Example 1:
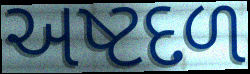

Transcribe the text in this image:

અષ્ટદળ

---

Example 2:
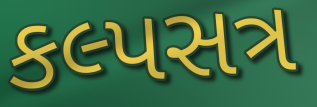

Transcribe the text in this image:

કલ્પસત્ર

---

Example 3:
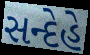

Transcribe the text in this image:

સન્દેહે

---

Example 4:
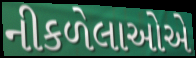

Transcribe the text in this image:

નીકળેલાઓએ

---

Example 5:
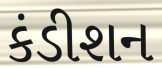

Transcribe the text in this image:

કંડીશન